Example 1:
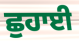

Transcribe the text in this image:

ਛੁਹਾਈ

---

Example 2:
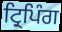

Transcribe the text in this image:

ਟ੍ਰਿਪਿੰਗ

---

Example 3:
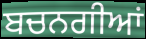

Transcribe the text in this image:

ਬਚਨਗੀਆਂ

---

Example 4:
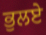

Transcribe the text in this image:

ਭੁਲਏ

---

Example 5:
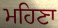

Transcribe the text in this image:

ਮਹਿਣਾ